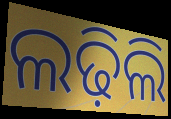
ଲଢ଼ିଲି